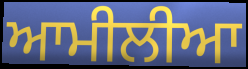
ਆਮੀਲੀਆ